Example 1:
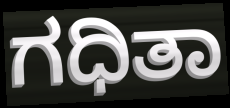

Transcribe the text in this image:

ಗಧಿತಾ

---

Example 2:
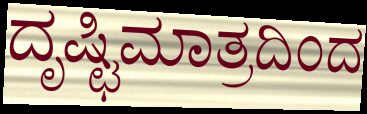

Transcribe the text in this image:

ದೃಷ್ಟಿಮಾತ್ರದಿಂದ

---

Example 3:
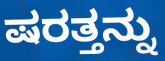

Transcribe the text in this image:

ಷರತ್ತನ್ನು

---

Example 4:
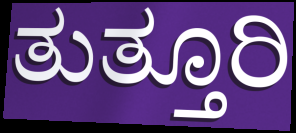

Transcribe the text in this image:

ತುತ್ತೂರಿ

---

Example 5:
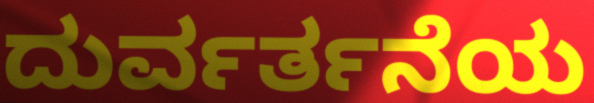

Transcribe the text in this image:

ದುರ್ವರ್ತನೆಯ